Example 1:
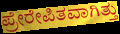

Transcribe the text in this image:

ಪ್ರೇರೇಪಿತವಾಗಿತ್ತು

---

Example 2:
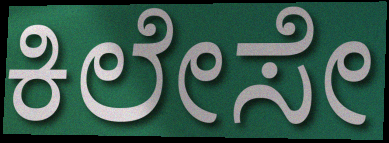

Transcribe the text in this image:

ಕಿಲೇಸೇ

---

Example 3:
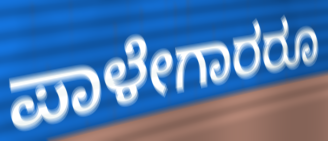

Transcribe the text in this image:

ಪಾಳೇಗಾರರೂ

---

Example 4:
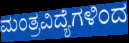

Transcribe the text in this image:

ಮಂತ್ರವಿದ್ಯೆಗಳಿಂದ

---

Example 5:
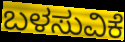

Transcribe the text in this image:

ಬಳಸುವಿಕೆ